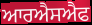
ਆਰਐਸਐਫ